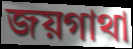
জয়গাথা